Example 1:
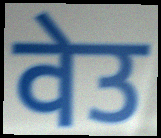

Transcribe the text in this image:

वेउ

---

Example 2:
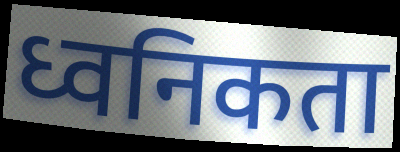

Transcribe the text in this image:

ध्वनिकता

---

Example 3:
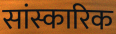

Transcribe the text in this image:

सांस्कारिक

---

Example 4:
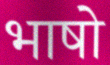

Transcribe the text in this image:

भाषो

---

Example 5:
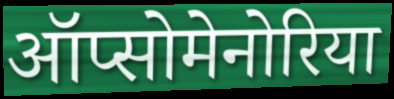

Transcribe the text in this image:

ऑप्सोमेनोरिया